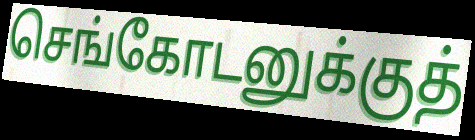
செங்கோடனுக்குத்